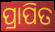
ପ୍ରାପିତ